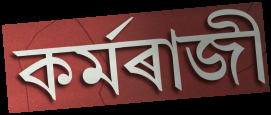
কৰ্মৰাজী